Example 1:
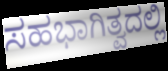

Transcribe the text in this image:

ಸಹಭಾಗಿತ್ವದಲ್ಲಿ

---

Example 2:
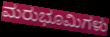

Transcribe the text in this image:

ಮರುಭೂಮಿಗಳು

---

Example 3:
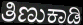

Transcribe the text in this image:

ತಿಣುಕಾಡಿ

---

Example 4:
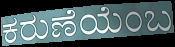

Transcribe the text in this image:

ಕರುಣೆಯೆಂಬ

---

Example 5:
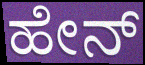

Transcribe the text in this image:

ಹೇನ್